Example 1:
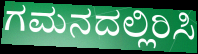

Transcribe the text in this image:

ಗಮನದಲ್ಲಿರಿಸಿ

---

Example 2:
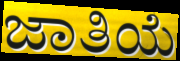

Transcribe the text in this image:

ಜಾತಿಯೆ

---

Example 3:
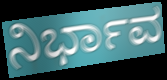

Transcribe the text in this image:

ನಿರ್ಭಾವ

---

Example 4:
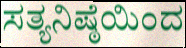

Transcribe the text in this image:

ಸತ್ಯನಿಷ್ಠೆಯಿಂದ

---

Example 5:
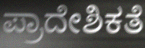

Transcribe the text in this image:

ಪ್ರಾದೇಶಿಕತೆ